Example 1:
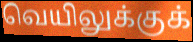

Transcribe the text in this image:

வெயிலுக்குக்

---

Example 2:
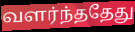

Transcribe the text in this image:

வளர்ந்ததேது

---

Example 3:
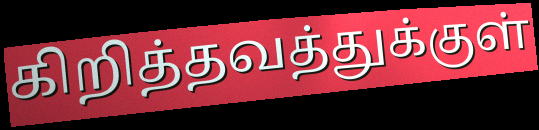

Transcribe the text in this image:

கிறித்தவத்துக்குள்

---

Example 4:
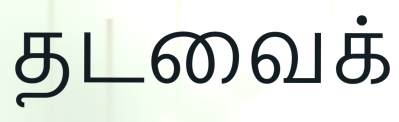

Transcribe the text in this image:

தடவைக்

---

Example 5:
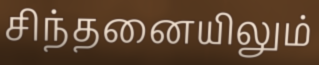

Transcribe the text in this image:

சிந்தனையிலும்